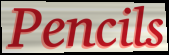
Pencils